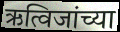
ऋत्विजांच्या